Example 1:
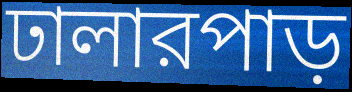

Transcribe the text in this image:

ঢালারপাড়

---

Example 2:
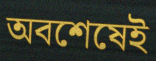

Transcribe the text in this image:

অবশেষেই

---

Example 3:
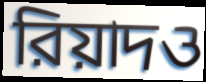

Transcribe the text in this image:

রিয়াদও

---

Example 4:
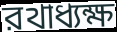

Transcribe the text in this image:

রথাধ্যক্ষ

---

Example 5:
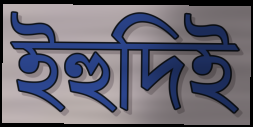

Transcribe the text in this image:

ইহুদিই